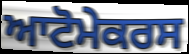
ਆਟੋਮੇਕਰਸ